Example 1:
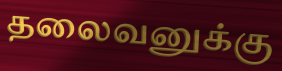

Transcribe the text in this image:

தலைவனுக்கு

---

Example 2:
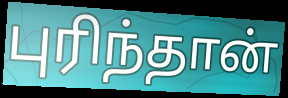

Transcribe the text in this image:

புரிந்தான்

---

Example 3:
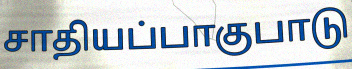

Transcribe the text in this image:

சாதியப்பாகுபாடு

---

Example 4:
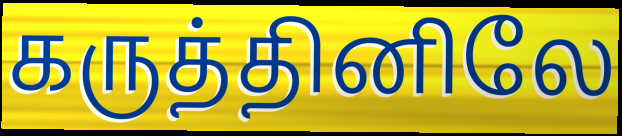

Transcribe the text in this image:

கருத்தினிலே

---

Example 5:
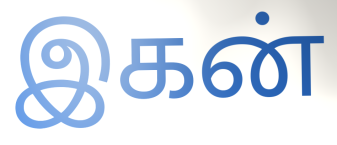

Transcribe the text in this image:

இகன்